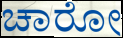
ಚಾರೋ